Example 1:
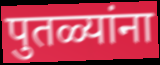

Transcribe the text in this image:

पुतळ्यांना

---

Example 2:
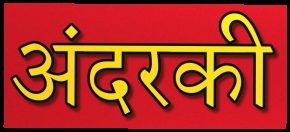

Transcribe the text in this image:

अंदरकी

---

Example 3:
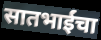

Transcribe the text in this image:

सातभाईंचा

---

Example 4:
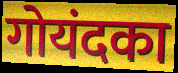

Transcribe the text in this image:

गोयंदका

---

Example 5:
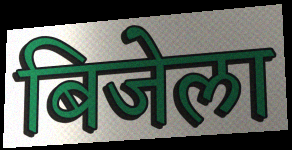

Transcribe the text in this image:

बिजेला